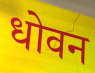
धोवन